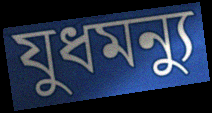
যুধমন্যু